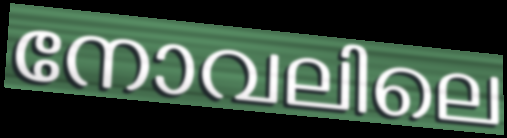
നോവലിലെ